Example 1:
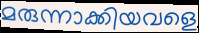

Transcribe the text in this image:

മരുന്നാക്കിയവളെ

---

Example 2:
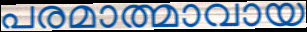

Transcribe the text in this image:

പരമാത്മാവായ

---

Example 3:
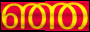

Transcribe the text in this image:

ഞ്ഞ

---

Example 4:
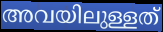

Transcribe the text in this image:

അവയിലുള്ളത്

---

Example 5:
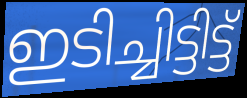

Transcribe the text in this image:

ഇടിച്ചിട്ടിട്ട്